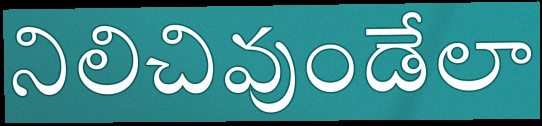
నిలిచివుండేలా